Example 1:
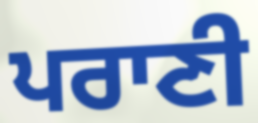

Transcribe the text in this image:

ਪਰਾਣੀ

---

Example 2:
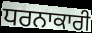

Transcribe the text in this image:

ਧਰਨਾਕਾਰੀ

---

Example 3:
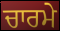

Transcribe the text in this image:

ਚਾਰਮੇ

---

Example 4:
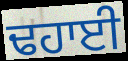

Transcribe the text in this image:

ਢਹਾਈ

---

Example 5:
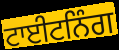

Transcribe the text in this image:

ਟਾਈਟਨਿੰਗ